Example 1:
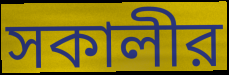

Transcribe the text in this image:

সকালীর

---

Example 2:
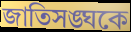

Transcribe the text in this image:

জাতিসঙ্ঘকে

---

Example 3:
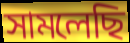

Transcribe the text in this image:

সামলেছি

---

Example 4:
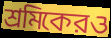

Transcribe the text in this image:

শ্রমিকেরও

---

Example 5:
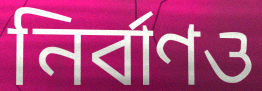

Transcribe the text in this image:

নির্বাণও